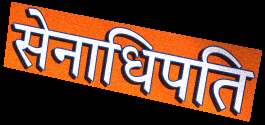
सेनाधिपति